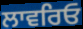
ਲਾਵਰਿਓ